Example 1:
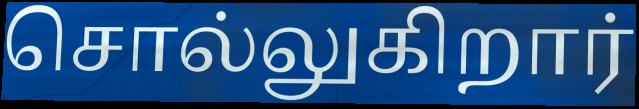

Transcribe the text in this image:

சொல்லுகிறார்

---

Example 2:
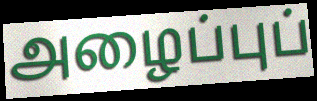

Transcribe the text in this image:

அழைப்புப்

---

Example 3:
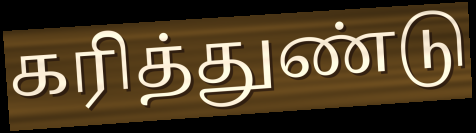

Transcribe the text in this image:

கரித்துண்டு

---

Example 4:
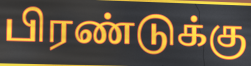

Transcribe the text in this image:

பிரண்டுக்கு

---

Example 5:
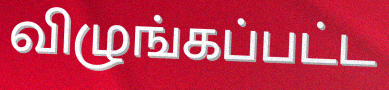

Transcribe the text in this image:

விழுங்கப்பட்ட